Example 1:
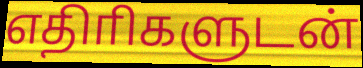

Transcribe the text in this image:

எதிரிகளுடன்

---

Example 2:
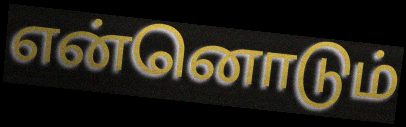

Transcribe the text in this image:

என்னொடும்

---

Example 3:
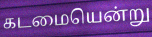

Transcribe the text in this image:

கடமையென்று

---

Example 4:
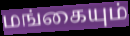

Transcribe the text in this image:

மங்கையும்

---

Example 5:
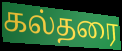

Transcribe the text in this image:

கல்தரை